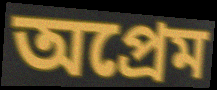
অপ্রেম